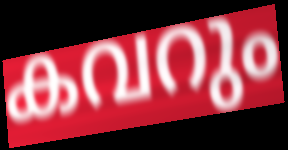
കവറും